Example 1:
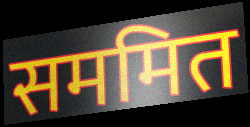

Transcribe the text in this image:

सममित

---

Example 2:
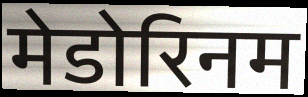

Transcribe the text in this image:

मेडोरिनम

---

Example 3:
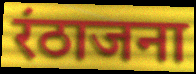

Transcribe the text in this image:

रंठाजना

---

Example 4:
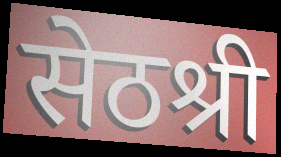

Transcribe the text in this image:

सेठश्री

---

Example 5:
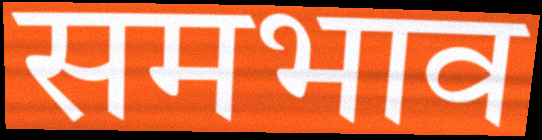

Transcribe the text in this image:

समभाव